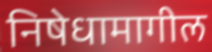
निषेधामागील